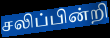
சலிப்பின்றி